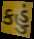
કહું